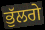
ਭੁੱਲਗੇ